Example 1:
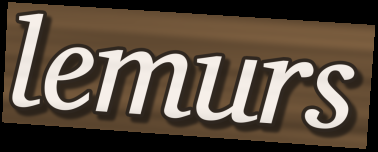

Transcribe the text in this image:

lemurs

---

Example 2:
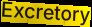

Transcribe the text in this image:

Excretory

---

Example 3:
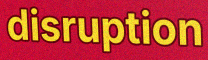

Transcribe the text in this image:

disruption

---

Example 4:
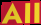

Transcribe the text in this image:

AII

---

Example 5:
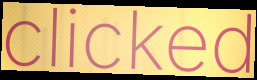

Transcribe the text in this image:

clicked